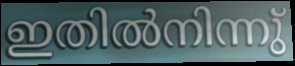
ഇതിൽനിന്നു്